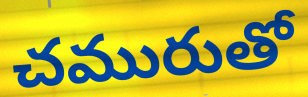
చమురుతో